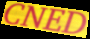
CNED